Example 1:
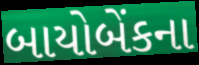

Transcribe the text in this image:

બાયોબેંકના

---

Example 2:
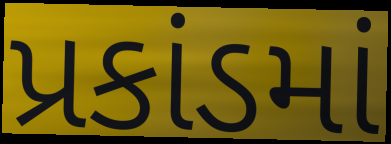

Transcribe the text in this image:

પ્રકાંડમાં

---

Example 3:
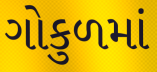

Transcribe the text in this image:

ગોકુળમાં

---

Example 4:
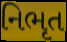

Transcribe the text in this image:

નિભૃત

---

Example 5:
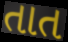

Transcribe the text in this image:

તાત